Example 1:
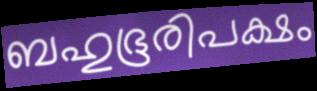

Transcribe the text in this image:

ബഹുഭൂരിപക്ഷം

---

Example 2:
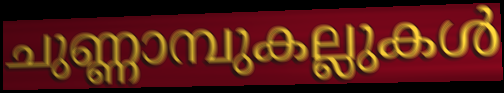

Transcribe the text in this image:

ചുണ്ണാമ്പുകല്ലുകൾ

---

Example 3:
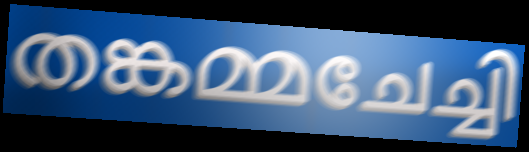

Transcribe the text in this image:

തങ്കമ്മചേച്ചി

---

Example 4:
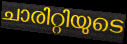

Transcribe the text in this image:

ചാരിറ്റിയുടെ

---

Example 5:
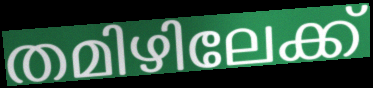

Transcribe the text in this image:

തമിഴിലേക്ക്